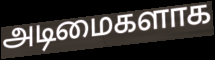
அடிமைகளாக